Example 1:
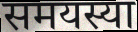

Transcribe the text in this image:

समयस्या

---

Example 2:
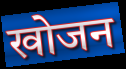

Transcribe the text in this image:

खोजन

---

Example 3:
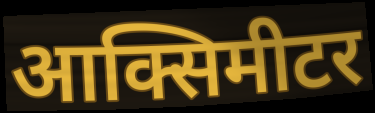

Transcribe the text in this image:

आक्सिमीटर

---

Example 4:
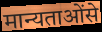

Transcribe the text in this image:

मान्यताओंसे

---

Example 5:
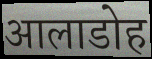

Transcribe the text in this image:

आलाडोह